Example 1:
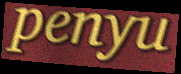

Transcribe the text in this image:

penyu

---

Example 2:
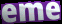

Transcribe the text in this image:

eme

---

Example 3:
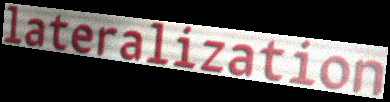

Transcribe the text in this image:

lateralization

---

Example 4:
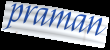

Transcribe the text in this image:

praman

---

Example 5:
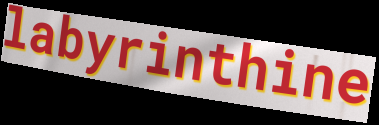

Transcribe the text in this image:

labyrinthine